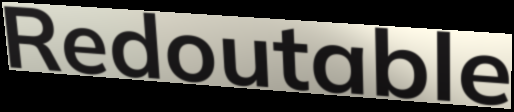
Redoutable